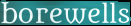
borewells